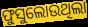
ଫୁସୁଲୋଉଥିଲା